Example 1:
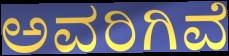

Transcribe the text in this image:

ಅವರಿಗಿವೆ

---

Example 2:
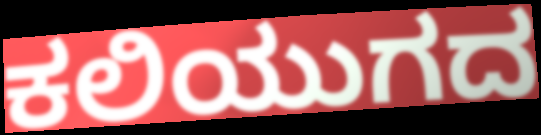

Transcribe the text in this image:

ಕಲಿಯುಗದ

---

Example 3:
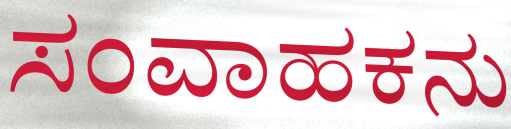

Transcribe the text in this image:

ಸಂವಾಹಕನು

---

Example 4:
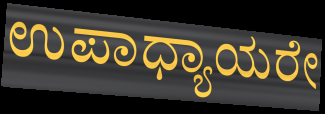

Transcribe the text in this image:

ಉಪಾಧ್ಯಾಯರೇ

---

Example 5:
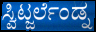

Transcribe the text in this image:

ಸ್ವಿಟ್ಜರ್ಲೆಂಡ್ನ